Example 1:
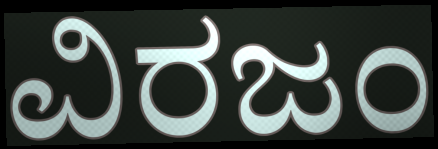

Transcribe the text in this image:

ವಿರಜಂ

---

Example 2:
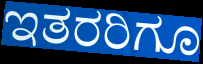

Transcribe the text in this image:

ಇತರರಿಗೂ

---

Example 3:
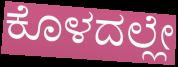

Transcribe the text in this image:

ಕೊಳದಲ್ಲೇ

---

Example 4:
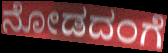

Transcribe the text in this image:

ನೋಡದಂಗೆ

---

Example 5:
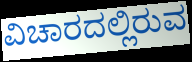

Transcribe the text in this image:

ವಿಚಾರದಲ್ಲಿರುವ